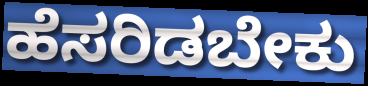
ಹೆಸರಿಡಬೇಕು